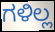
ಗಳಿಲ್ಲ